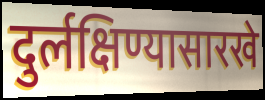
दुर्लक्षिण्यासारखे